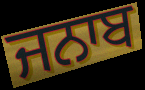
ਜਨਾਬ